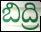
బిద్రి